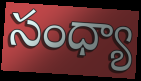
సంధ్యా